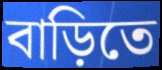
বাড়িতে